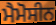
ਮੈਮੋਸੀਨ